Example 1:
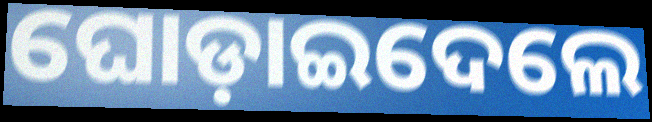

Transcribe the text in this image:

ଘୋଡ଼ାଇଦେଲେ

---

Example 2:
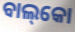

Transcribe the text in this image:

ବାଲ୍‌କୋ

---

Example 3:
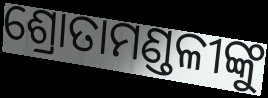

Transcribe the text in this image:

ଶ୍ରୋତାମଣ୍ଡଳୀଙ୍କୁ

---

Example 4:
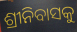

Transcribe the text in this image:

ଶ୍ରୀନିବାସକୁ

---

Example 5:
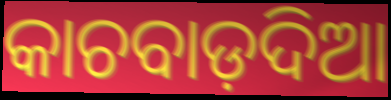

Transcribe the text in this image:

କାଚବାଡ଼ଦିଆ